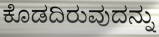
ಕೊಡದಿರುವುದನ್ನು